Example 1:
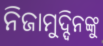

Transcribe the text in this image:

ନିଜାମୁଦ୍ଦିନଙ୍କୁ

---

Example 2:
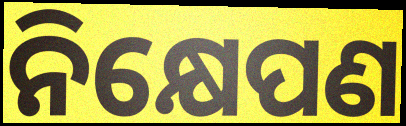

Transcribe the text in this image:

ନିକ୍ଷେପଣ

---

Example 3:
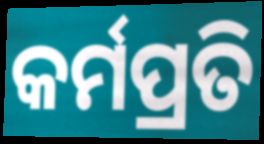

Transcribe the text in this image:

କର୍ମପ୍ରତି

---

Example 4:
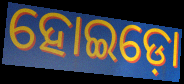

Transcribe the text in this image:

ହୋଇଡ଼ୋ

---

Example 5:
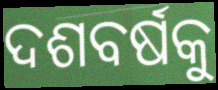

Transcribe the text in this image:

ଦଶବର୍ଷକୁ